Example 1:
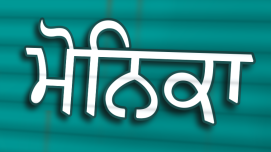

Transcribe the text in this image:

ਮੋਨਿਕਾ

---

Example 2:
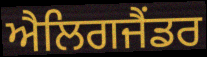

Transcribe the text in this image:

ਐਲਿਗਜੈਂਡਰ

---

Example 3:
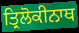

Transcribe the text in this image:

ਤ੍ਰਿਲੋਕੀਨਾਥ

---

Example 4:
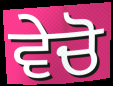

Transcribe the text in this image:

ਵੇਚੋ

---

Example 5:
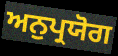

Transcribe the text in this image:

ਅਨੁਪ੍ਰਯੋਗ